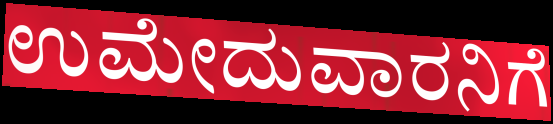
ಉಮೇದುವಾರನಿಗೆ